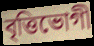
বৃত্তিভোগী